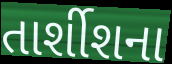
તાર્શીશના